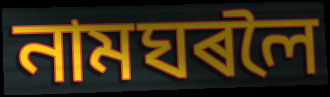
নামঘৰলৈ